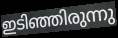
ഇടിഞ്ഞിരുന്നു